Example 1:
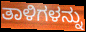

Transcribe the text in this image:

ತಾಳಿಗಳನ್ನು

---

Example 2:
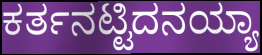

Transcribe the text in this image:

ಕರ್ತನಟ್ಟಿದನಯ್ಯಾ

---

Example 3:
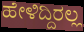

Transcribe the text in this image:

ಹೇಳಿದ್ದಿರಲ್ಲ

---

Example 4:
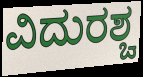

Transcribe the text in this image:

ವಿದುರಶ್ಚ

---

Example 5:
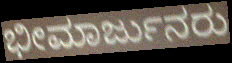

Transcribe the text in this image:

ಭೀಮಾರ್ಜುನರು